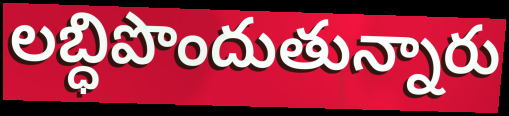
లబ్ధిపొందుతున్నారు